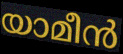
യാമീൻ